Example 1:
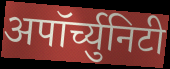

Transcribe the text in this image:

अपॉर्च्युनिटी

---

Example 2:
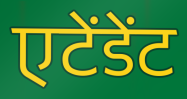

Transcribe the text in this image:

एटेंडेंट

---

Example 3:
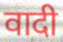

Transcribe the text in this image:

वादी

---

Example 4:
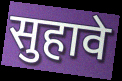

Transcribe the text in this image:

सुहावे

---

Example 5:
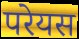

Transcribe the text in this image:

परेयस